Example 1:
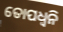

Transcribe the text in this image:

ତୋପଧ୍ୱନି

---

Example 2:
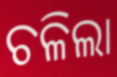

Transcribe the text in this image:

ଚଳିଲା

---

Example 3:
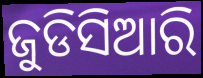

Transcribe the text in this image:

ଜୁଡିସିଆରି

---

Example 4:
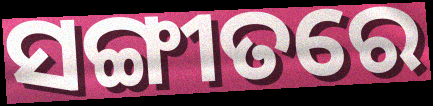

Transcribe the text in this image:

ସଙ୍ଗୀତରେ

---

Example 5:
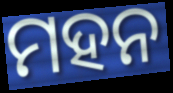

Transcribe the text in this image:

ମହନ